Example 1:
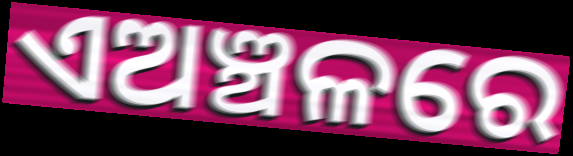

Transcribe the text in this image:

ଏଅଞ୍ଚଳରେ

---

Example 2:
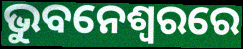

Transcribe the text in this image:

ଭୁବନେଶ୍ବରରେ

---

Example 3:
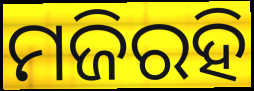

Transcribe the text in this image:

ମଜିରହି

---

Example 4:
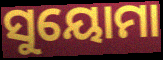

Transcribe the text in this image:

ସୁୟୋମା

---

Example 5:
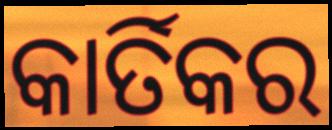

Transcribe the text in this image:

କାର୍ତିକର